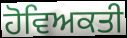
ਹੋਵਿਅਕਤੀ